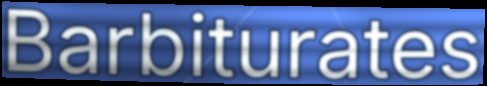
Barbiturates